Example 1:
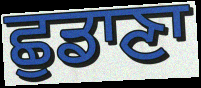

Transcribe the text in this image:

ਛੁਡਾਣਾ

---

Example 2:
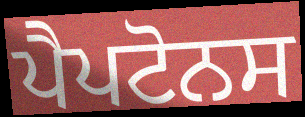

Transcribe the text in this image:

ਪੈਪਟੋਨਸ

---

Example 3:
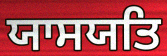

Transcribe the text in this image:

ਯਾਸਯਤਿ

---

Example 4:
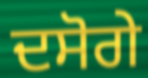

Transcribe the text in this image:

ਦਸੋਗੇ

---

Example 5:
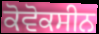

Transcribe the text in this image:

ਕੋਵੋਕਸੀਨ